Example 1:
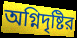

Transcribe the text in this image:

অগ্নিদৃষ্টির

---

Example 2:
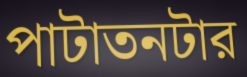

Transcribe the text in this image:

পাটাতনটার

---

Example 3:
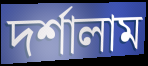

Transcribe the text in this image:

দর্শালাম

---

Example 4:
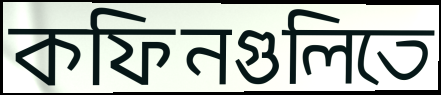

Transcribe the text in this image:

কফিনগুলিতে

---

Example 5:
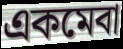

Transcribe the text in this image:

একমেবা